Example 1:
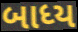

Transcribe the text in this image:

બાધ્ય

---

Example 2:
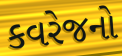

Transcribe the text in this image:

કવરેજનો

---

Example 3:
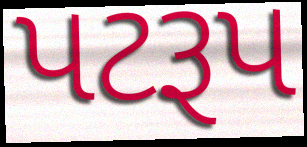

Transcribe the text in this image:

પટરૂપ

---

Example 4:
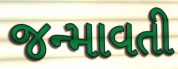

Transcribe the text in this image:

જન્માવતી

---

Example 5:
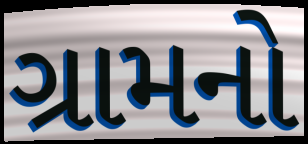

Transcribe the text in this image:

ગ્રામનો